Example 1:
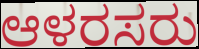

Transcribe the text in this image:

ಆಳರಸರು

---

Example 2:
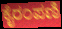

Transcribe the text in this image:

ಕೈರಂಪಣಿ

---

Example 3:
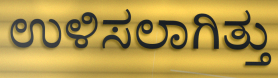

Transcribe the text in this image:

ಉಳಿಸಲಾಗಿತ್ತು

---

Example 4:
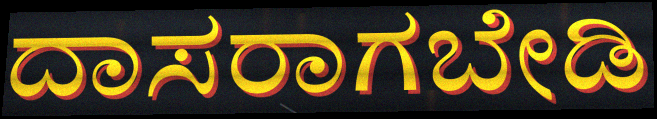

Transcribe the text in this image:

ದಾಸರಾಗಬೇಡಿ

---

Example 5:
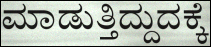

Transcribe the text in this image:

ಮಾಡುತ್ತಿದ್ದುದಕ್ಕೆ